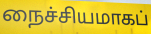
நைச்சியமாகப்